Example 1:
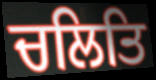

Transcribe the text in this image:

ਚਲਿਤਿ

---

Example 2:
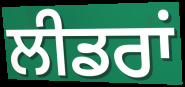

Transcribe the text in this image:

ਲੀਡਰਾਂ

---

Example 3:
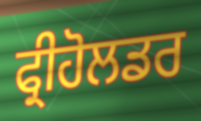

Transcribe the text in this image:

ਫ੍ਰੀਹੋਲਡਰ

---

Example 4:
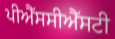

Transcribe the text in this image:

ਪੀਐੱਸਸੀਐੱਸਟੀ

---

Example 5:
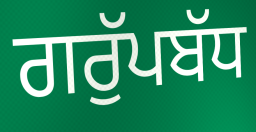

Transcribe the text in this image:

ਗਰੁੱਪਬੱਧ